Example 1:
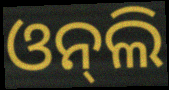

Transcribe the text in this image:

ଓନ୍‍ଲି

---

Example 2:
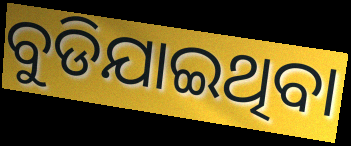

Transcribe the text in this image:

ବୁଡିଯାଇଥିବା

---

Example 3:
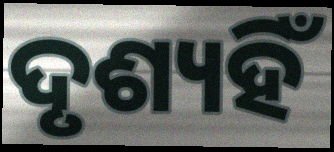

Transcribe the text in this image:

ଦୃଶ୍ୟହିଁ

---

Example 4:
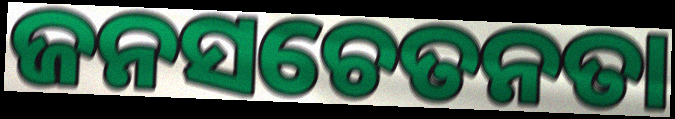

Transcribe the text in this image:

ଜନସଚେତନତା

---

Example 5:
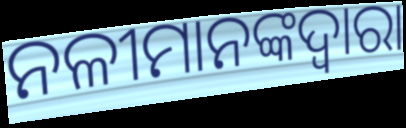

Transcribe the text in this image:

ନଳୀମାନଙ୍କଦ୍ୱାରା